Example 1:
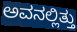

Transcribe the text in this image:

ಅವನಲ್ಲಿತ್ತು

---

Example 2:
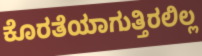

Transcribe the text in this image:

ಕೊರತೆಯಾಗುತ್ತಿರಲಿಲ್ಲ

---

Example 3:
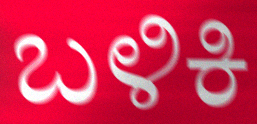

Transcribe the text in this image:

ಬಳಿಕಿ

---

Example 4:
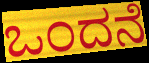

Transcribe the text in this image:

ಒಂದನೆ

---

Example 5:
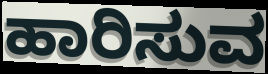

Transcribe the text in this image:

ಹಾರಿಸುವ